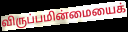
விருப்பமின்மையைக்